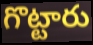
గొట్టారు